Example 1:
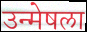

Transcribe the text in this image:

उन्मेषला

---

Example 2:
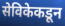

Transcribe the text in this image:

सेविकेकडून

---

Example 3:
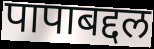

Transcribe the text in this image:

पापाबद्दल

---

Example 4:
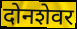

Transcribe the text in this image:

दोनशेवर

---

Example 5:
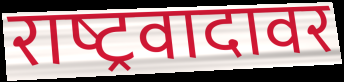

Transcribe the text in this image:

राष्ट्रवादावर